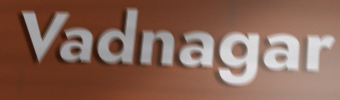
Vadnagar